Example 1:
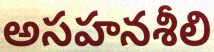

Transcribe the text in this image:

అసహనశీలి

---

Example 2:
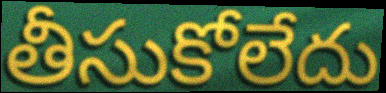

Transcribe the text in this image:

తీసుకోలేదు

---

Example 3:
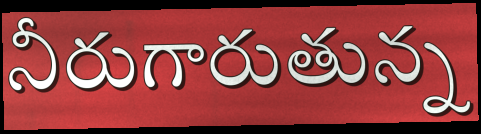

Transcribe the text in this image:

నీరుగారుతున్న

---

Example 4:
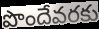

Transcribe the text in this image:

పొందేవరకు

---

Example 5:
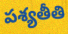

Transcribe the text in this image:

పశ్యతీతి